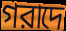
গরাদে